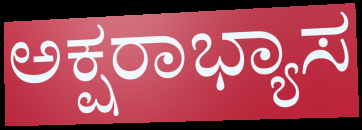
ಅಕ್ಷರಾಭ್ಯಾಸ